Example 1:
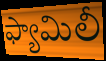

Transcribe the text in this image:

ఫ్యామిలీ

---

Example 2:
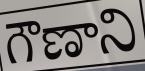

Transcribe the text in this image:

గౌణాని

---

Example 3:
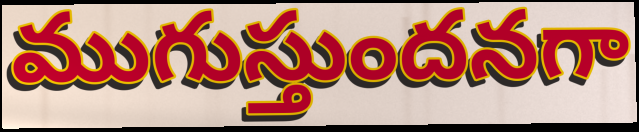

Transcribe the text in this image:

ముగుస్తుందనగా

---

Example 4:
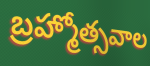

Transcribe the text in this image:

బ్రహ్మోత్సవాల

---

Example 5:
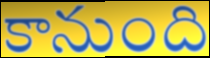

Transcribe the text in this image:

కానుంది